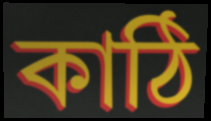
কাঠি